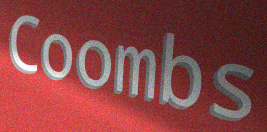
Coombs